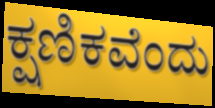
ಕ್ಷಣಿಕವೆಂದು